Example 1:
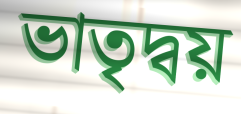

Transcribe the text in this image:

ভাতৃদ্বয়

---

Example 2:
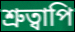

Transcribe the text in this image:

শ্রুত্বাপি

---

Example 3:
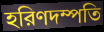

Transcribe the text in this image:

হরিণদম্পতি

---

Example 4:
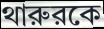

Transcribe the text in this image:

থারুরকে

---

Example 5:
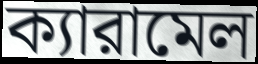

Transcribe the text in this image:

ক্যারামেল